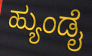
ಹ್ಯುಂಡೈ